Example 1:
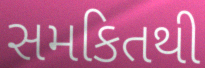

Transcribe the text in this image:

સમકિતથી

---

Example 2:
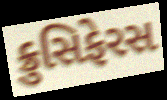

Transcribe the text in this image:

ક્રુસિફેરસ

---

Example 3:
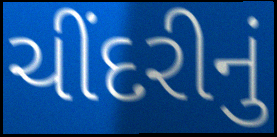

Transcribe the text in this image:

ચીંદરીનું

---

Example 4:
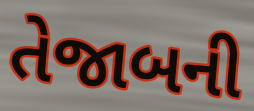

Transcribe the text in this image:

તેજાબની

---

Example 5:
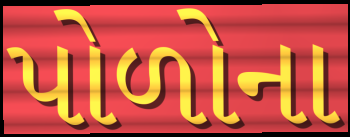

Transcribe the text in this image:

પોળોના